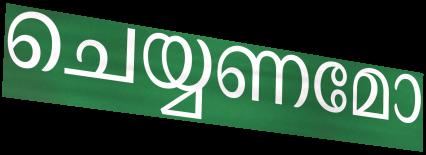
ചെയ്യണമോ